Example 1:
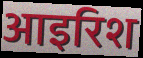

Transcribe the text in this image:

आइरिश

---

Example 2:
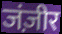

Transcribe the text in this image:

जंज़ीर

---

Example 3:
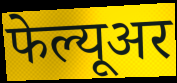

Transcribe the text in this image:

फेल्यूअर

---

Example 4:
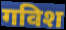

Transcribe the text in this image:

गविश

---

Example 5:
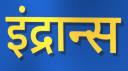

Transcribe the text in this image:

इंद्रान्स